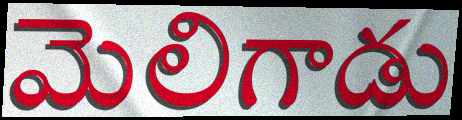
మెలిగాడు